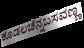
ಕೂಡಲಚೆನ್ನಬಸವಣ್ಣ